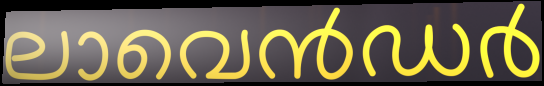
ലാവെൻഡർ